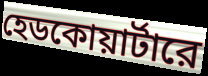
হেডকোয়ার্টারে